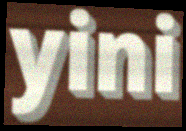
yini